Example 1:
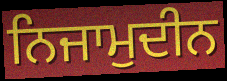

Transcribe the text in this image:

ਨਿਜਾਮੁਦੀਨ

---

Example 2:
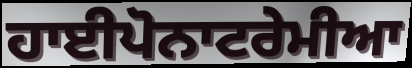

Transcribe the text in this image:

ਹਾਈਪੋਨਾਟਰੇਮੀਆ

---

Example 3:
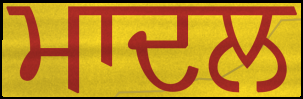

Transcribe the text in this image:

ਮਾਦਲ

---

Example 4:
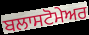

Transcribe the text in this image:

ਬਲਾਸਟੋਮੇਅਰ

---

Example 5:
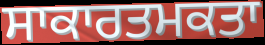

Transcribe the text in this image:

ਸਾਕਾਰਤਮਕਤਾ